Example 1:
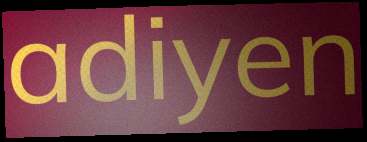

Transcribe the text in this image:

adiyen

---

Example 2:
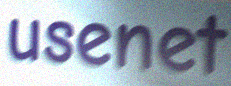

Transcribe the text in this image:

usenet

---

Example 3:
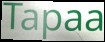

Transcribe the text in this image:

Tapaa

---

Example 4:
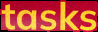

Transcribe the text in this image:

tasks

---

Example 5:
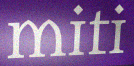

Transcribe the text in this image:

miti